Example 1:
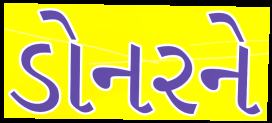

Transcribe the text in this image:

ડોનરને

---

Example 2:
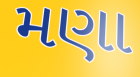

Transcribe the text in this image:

મણા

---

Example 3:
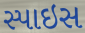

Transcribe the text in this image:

સ્પાઇસ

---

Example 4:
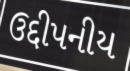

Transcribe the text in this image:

ઉદ્દીપનીય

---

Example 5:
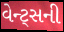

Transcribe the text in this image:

વેન્ટ્સની